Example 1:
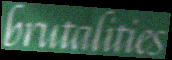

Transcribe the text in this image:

brutalities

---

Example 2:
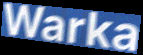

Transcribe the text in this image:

Warka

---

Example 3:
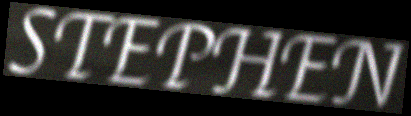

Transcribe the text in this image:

STEPHEN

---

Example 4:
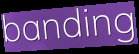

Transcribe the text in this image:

banding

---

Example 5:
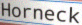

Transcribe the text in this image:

Horneck